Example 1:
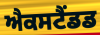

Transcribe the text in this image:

ਐਕਸਟੈਂਡਡ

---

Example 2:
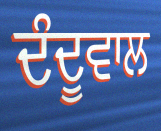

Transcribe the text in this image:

ਦੰਦੂਵਾਲ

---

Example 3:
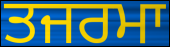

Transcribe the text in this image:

ਤਜਰਮਾ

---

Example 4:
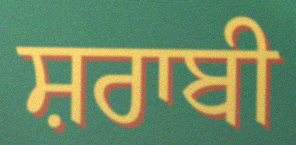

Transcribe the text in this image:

ਸ਼ਰਾਬੀ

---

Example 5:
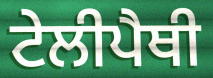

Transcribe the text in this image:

ਟੇਲੀਪੈਥੀ